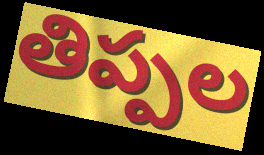
తిప్పల